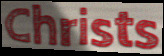
Christs